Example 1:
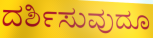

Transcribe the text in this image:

ದರ್ಶಿಸುವುದೂ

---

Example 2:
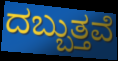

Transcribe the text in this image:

ದಬ್ಬುತ್ತವೆ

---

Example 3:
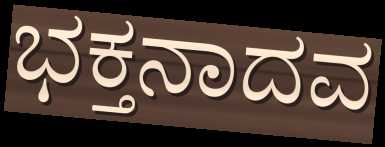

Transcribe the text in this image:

ಭಕ್ತನಾದವ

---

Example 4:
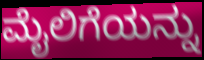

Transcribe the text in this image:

ಮೈಲಿಗೆಯನ್ನು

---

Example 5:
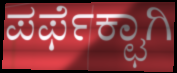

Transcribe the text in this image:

ಪರ್ಫೆಕ್ಟಾಗಿ